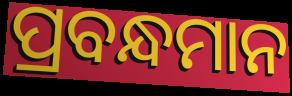
ପ୍ରବନ୍ଧମାନ